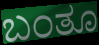
ಬಂತೂ